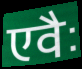
एवैः